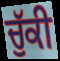
ਚੁੱਕੀ